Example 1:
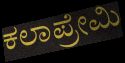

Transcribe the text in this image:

ಕಲಾಪ್ರೇಮಿ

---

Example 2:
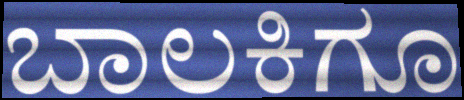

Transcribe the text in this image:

ಬಾಲಕಿಗೂ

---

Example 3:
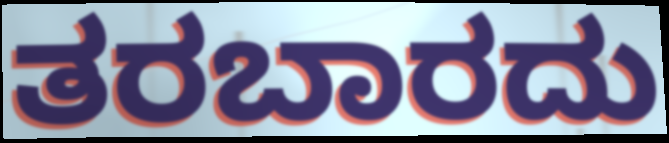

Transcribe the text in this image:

ತರಬಾರದು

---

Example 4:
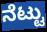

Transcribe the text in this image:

ನೆಟ್ಟು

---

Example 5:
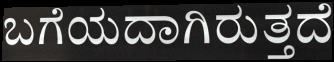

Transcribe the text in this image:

ಬಗೆಯದಾಗಿರುತ್ತದೆ